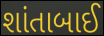
શાંતાબાઈ